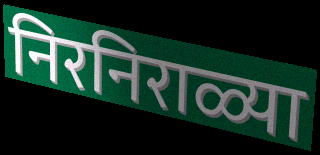
निरनिराळ्या